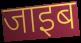
जाइब